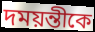
দময়ন্তীকে